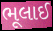
ભૂલાઈ